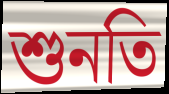
শুনতি